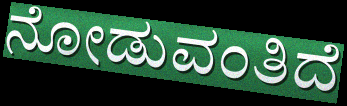
ನೋಡುವಂತಿದೆ